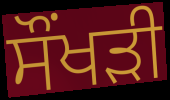
ਸੌਂਖੜੀ